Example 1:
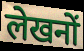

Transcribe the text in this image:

लेखनों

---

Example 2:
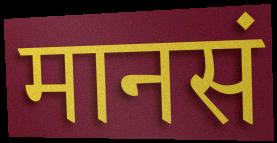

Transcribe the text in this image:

मानसं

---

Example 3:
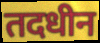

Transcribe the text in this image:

तदधीन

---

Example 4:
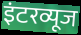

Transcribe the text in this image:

इंटरव्यूज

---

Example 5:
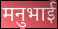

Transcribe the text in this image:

मनुभाई